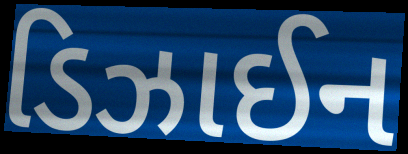
ડિઝાઈન